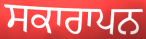
ਸਕਾਰਾਪਨ